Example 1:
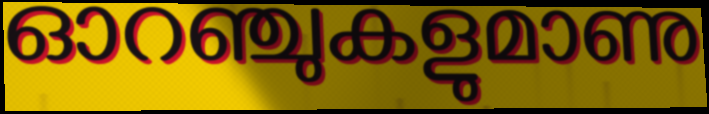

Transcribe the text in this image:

ഓറഞ്ചുകളുമാണു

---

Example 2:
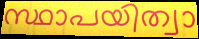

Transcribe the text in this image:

സ്ഥാപയിത്വാ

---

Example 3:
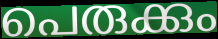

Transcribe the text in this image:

പെരുക്കും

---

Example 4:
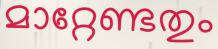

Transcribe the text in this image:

മാറ്റേണ്ടതും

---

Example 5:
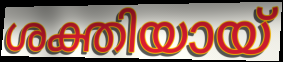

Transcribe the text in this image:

ശക്തിയായ്